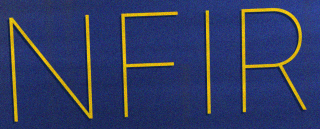
NFIR